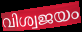
വിശ്വജയം